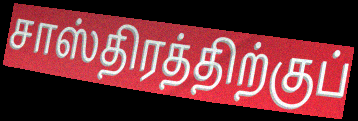
சாஸ்திரத்திற்குப்